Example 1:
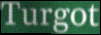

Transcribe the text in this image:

Turgot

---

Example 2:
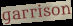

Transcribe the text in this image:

garrison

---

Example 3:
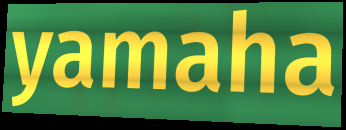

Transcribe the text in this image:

yamaha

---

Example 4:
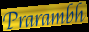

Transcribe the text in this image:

Prarambh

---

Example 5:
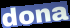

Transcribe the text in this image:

dona